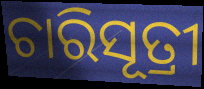
ଚାରିସୂତ୍ରୀ